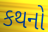
કથનો